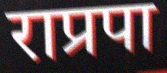
राप्रपा